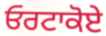
ਓਰਟਾਕੋਏ